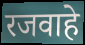
रजवाहे